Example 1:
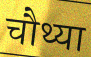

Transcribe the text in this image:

चौथ्या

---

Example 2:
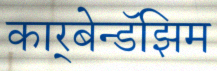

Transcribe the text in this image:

कार्बेन्डॅझिम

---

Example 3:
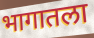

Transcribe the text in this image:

भागातला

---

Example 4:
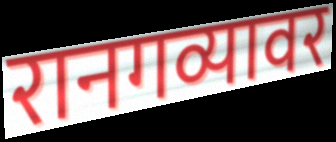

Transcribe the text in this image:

रानगव्यावर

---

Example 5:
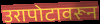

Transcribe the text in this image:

उरापोटावरून